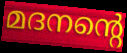
മദനന്റെ